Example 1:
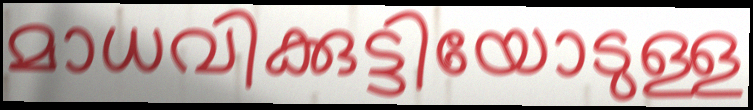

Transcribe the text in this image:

മാധവിക്കുട്ടിയോടുള്ള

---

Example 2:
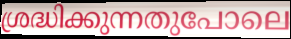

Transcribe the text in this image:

ശ്രദ്ധിക്കുന്നതുപോലെ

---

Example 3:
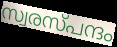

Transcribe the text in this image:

സ്വരസ്പന്ദം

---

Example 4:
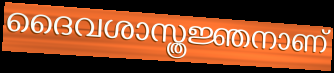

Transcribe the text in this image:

ദൈവശാസ്ത്രജ്ഞനാണ്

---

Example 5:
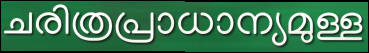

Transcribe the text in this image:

ചരിത്രപ്രാധാന്യമുള്ള